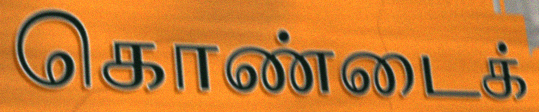
கொண்டைக்